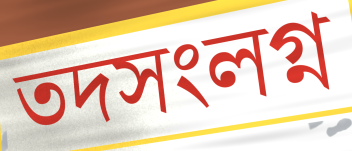
তদসংলগ্ন